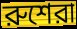
রুশেরা